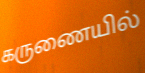
கருணையில்